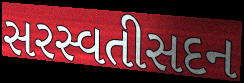
સરસ્વતીસદન